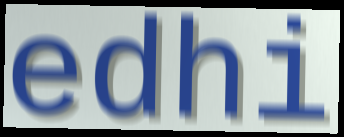
edhi